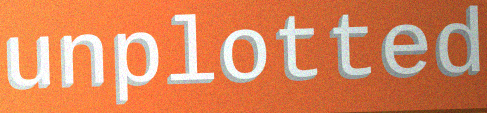
unplotted